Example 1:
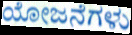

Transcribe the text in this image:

ಯೋಜನೆಗಳು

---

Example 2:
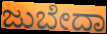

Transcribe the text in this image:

ಜುಬೇದಾ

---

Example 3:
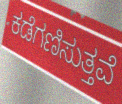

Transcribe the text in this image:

ಕಡೆಗಣಿಸುತ್ತವೆ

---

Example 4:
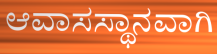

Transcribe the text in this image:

ಆವಾಸಸ್ಥಾನವಾಗಿ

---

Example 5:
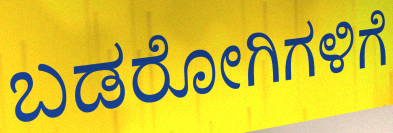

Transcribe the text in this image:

ಬಡರೋಗಿಗಳಿಗೆ